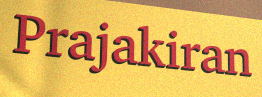
Prajakiran